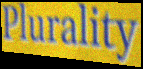
Plurality